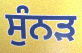
ਸੁੰਨੜ